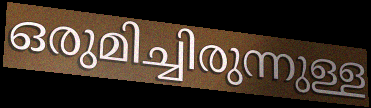
ഒരുമിച്ചിരുന്നുള്ള